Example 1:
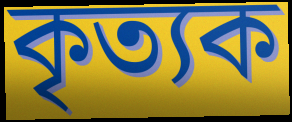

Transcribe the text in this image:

কৃত্যক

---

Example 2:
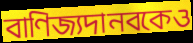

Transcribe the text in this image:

বাণিজ্যদানবকেও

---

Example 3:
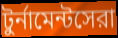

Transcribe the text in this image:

টুর্নামেন্টসেরা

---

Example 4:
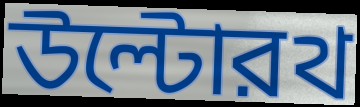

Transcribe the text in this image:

উল্টোরথ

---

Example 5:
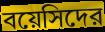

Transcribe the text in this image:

বয়েসিদের